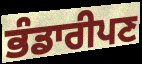
ਭੰਡਾਰੀਪਣ